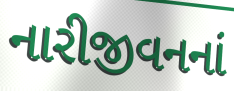
નારીજીવનનાં